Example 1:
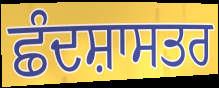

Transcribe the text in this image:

ਛੰਦਸ਼ਾਸਤਰ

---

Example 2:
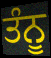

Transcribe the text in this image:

ਤੰਨੂ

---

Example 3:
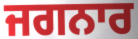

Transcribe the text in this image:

ਜਗਨਾਰ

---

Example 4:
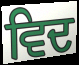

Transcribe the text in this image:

ਵਿਦ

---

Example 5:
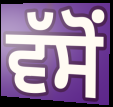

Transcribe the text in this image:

ਵੱਸੋਂ